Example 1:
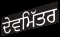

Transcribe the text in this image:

ਦੇਵਮਿੱਤਰ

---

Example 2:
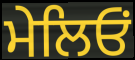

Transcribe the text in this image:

ਮੇਲਿਓਂ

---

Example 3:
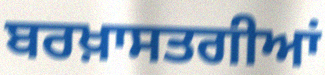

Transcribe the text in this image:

ਬਰਖ਼ਾਸਤਗੀਆਂ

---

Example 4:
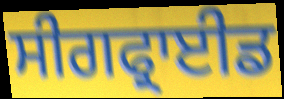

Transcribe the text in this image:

ਸੀਗਫ੍ਰਾਈਡ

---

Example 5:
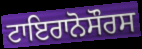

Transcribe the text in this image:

ਟਾਇਰਾਨੋਸੌਰਸ